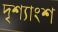
দৃশ্যাংশ